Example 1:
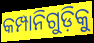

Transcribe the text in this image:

କମ୍ପାନିଗୁଡ଼ିକୁ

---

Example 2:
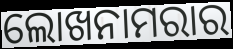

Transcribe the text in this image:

ଲୋଖନାମରାର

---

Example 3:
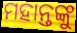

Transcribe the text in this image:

ମହାନ୍ତଙ୍କୁ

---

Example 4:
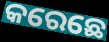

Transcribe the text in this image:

କରେଛେ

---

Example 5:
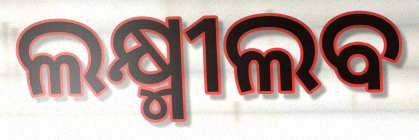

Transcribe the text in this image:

ଲକ୍ଷ୍ମୀଲବ